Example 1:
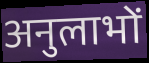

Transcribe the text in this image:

अनुलाभों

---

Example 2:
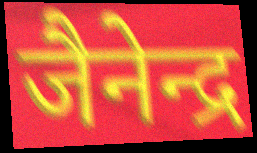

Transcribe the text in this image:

जैनेन्द्र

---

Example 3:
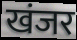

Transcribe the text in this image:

खंजर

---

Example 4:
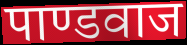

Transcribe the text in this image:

पाण्डवाज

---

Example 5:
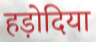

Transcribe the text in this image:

हड़ोदिया